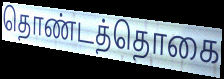
தொண்டத்தொகை